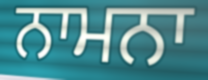
ਨਾਮਨਾ